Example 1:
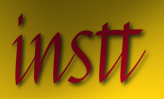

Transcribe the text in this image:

instt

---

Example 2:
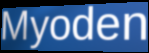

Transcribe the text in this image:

Myoden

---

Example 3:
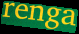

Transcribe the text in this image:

renga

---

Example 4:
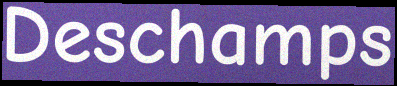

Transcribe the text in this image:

Deschamps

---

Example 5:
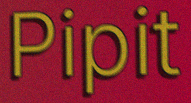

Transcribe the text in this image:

Pipit